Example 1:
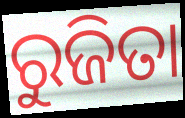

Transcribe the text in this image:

ରୁଜିତା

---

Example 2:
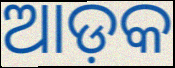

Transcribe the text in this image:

ଆଡ଼କ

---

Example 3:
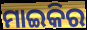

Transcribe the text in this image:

ମାଇକିର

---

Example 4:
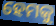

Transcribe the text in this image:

ହେମକୁ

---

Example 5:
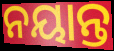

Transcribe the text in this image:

ନୟାନ୍ତ